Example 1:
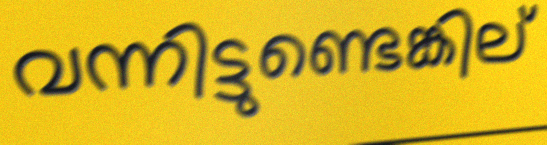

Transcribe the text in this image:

വന്നിട്ടുണ്ടെങ്കില്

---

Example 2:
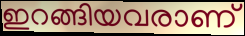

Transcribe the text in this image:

ഇറങ്ങിയവരാണ്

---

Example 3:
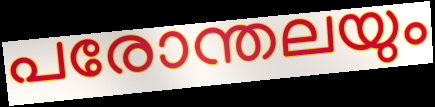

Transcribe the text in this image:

പരോന്തലയും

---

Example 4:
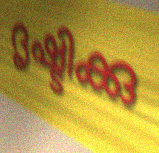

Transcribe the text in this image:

ദൃഷ്ടിക്കു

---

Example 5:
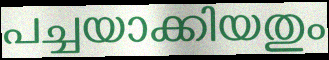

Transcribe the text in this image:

പച്ചയാക്കിയതും